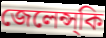
জেলেন্স্কি